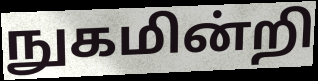
நுகமின்றி